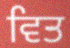
ਵਿਤ